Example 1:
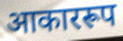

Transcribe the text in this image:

आकाररूप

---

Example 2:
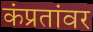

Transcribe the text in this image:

कंप्रतांवर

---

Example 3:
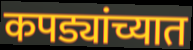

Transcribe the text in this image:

कपड्यांच्यात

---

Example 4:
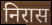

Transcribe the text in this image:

निरास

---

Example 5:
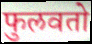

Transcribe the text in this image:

फुलवतो